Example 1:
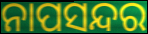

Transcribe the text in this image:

ନାପସନ୍ଦର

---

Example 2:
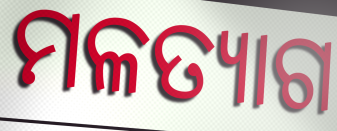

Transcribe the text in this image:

ମଳତ୍ୟାଗ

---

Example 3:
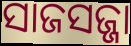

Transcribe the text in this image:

ସାଜସଜ୍ଜା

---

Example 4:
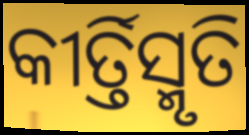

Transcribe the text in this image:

କୀର୍ତ୍ତିସ୍ମୃତି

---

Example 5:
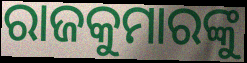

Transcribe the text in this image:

ରାଜକୁମାରଙ୍କୁ